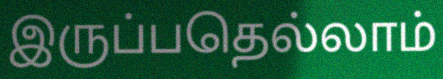
இருப்பதெல்லாம்